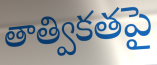
తాత్వికతపై